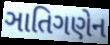
ઞાતિગણેન